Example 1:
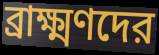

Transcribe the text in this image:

ব্রাক্ষ্মণদের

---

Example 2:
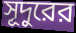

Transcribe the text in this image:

সূদুরের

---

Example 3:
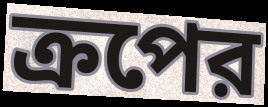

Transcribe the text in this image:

ক্রপের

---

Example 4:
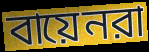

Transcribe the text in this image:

বায়েনরা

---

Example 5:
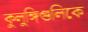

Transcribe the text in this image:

কুলুঙ্গিগুলিকে